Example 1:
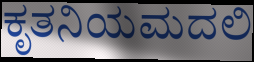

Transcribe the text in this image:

ಕೃತನಿಯಮದಲಿ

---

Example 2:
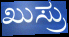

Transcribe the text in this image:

ಖುಸ್ರು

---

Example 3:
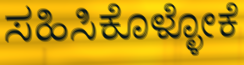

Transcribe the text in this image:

ಸಹಿಸಿಕೊಳ್ಳೋಕೆ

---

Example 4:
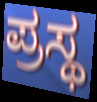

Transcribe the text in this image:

ಪ್ರಸ್ಥ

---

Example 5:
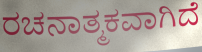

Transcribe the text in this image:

ರಚನಾತ್ಮಕವಾಗಿದೆ